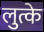
लुत्के